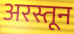
अरस्तून